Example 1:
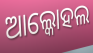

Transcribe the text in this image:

ଆଲ୍କୋହଲ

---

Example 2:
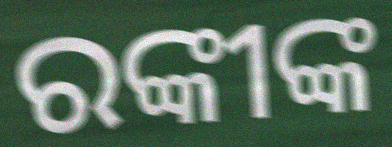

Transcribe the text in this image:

ରଙ୍କୀଙ୍କ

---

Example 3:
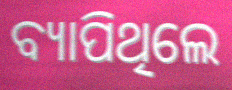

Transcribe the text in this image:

ବ୍ୟାପିଥିଲେ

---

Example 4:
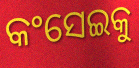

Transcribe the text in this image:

କଂସେଇକୁ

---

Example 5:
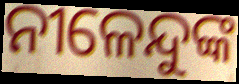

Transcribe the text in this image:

ନୀଳେନ୍ଦୁଙ୍କ